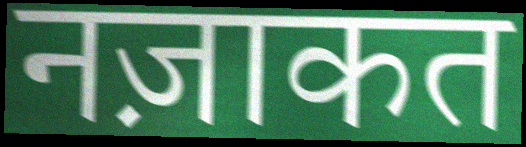
नज़ाकत